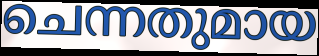
ചെന്നതുമായ